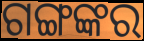
ଗଙ୍ଗଙ୍କର